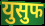
युसुफ